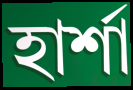
হার্শা